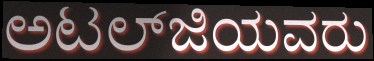
ಅಟಲ್‍ಜಿಯವರು